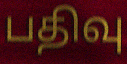
பதிவு